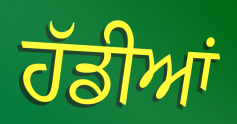
ਹੱਡੀਆਂ